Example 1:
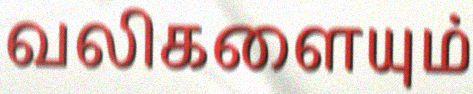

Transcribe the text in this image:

வலிகளையும்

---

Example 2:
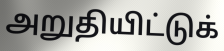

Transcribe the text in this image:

அறுதியிட்டுக்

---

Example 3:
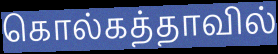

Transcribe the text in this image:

கொல்கத்தாவில்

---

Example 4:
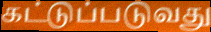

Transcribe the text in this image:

கட்டுப்படுவது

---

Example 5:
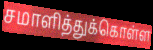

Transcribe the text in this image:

சமாளித்துக்கொள்ள